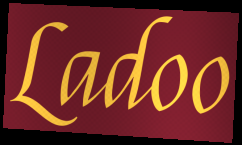
Ladoo